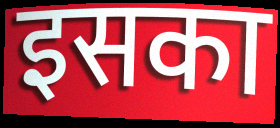
इसका